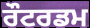
ਰੌਟਰਡਮ